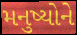
મનુષ્યોને